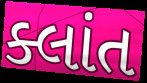
ક્લાંત